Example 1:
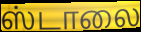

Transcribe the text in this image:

ஸ்டாலை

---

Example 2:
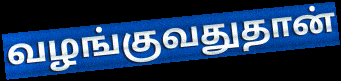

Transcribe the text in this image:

வழங்குவதுதான்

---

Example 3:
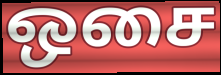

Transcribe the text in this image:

ஒசை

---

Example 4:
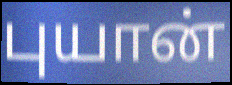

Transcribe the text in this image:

புயான்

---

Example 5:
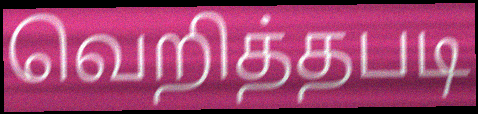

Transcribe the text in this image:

வெறித்தபடி